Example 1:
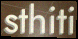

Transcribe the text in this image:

sthiti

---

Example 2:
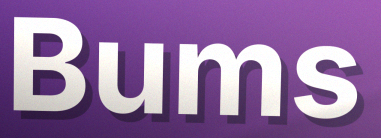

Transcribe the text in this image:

Bums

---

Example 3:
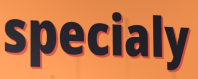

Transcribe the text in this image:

specialy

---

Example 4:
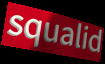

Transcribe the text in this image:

squalid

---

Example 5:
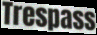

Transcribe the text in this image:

Trespass